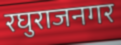
रघुराजनगर